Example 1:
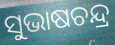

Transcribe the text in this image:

ସୁଭାଷଚନ୍ଦ୍ର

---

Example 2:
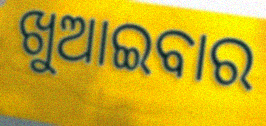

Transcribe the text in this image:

ଖୁଆଇବାର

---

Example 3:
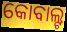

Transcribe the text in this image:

କୋବାଲ୍ଟ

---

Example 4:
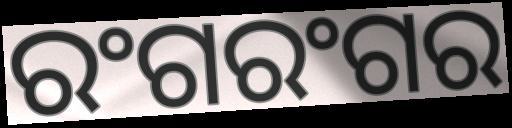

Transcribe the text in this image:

ରଂଗରଂଗର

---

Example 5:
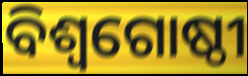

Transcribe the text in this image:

ବିଶ୍ୱଗୋଷ୍ଠୀ